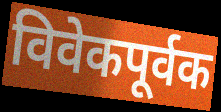
विवेकपूर्वक